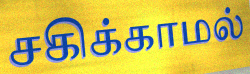
சகிக்காமல்